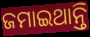
ଜମାଇଥାନ୍ତି